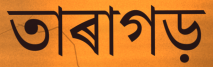
তাৰাগড়